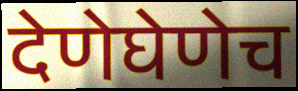
देणेघेणेच